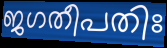
ജഗതീപതിഃ